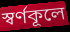
স্বর্ণকূলে